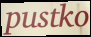
pustko